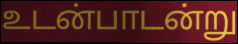
உடன்பாடன்று